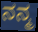
ನನ್ಮ